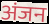
अंजन